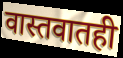
वास्तवातही